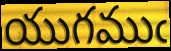
యుగముఁ